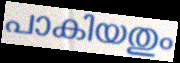
പാകിയതും